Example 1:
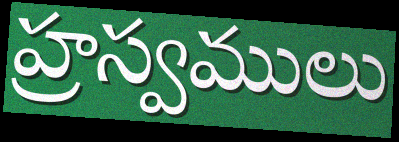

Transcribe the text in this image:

హ్రస్వములు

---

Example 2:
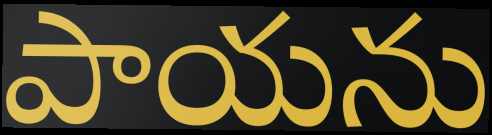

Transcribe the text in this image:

పాయను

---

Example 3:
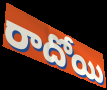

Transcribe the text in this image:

రాదోయి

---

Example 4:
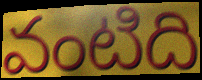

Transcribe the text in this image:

వంటిది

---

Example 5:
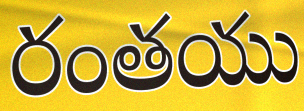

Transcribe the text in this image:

రంతయు